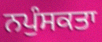
ਨਪੁੰਸਕਤਾ